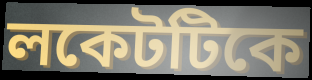
লকেটটিকে